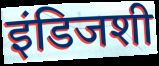
इंडिजशी